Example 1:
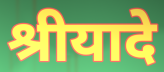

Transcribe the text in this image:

श्रीयादे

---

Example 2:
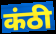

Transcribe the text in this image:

कंठी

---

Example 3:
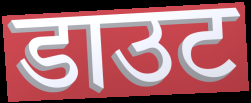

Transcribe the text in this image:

डाउट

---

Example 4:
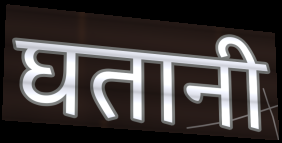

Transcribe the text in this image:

घतानी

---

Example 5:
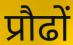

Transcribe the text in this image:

प्रौढों